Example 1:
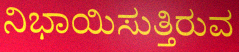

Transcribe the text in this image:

ನಿಭಾಯಿಸುತ್ತಿರುವ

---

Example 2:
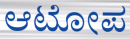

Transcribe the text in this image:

ಆಟೋಪ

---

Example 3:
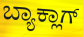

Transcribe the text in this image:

ಬ್ಯಾಕ್ಲಾಗ್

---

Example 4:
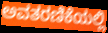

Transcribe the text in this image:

ಅವತರಣಿಕೆಯಲ್ಲಿ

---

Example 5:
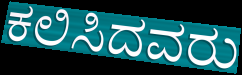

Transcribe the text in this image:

ಕಲಿಸಿದವರು